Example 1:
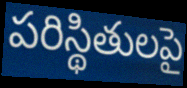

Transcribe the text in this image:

పరిస్థితులపై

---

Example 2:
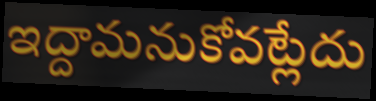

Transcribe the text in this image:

ఇద్దామనుకోవట్లేదు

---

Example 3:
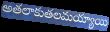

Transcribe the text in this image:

అతలాకుతలమయ్యాయి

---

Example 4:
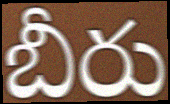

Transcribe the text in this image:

బీరు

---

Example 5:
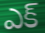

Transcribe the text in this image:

ఎక్